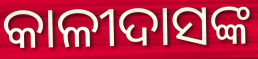
କାଳୀଦାସଙ୍କ